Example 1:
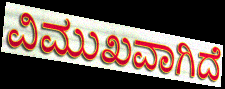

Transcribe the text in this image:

ವಿಮುಖವಾಗಿದೆ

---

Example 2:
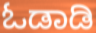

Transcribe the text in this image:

ಓಡಾಡಿ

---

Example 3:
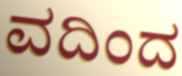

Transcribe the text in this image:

ವದಿಂದ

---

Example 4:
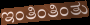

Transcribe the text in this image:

ಇಂತಿಂತಿಂತು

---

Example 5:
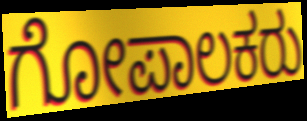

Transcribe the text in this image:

ಗೋಪಾಲಕರು